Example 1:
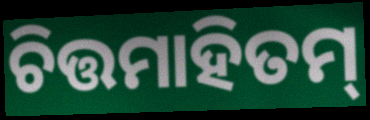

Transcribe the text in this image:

ଚିତ୍ତମାହିତମ୍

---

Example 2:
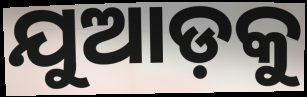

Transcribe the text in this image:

ଯୁଆଡ଼କୁ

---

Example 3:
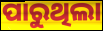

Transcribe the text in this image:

ପାରୁଥିଲା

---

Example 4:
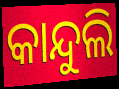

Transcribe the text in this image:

କାନ୍ଦୁଲି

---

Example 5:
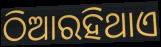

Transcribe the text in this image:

ଠିଆରହିଥାଏ